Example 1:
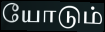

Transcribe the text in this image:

யோடும்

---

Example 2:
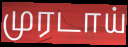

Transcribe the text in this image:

முரடாய்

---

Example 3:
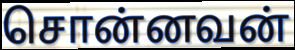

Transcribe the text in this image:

சொன்னவன்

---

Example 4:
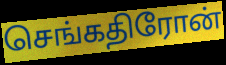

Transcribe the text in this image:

செங்கதிரோன்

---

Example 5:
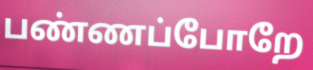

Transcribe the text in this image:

பண்ணப்போறே